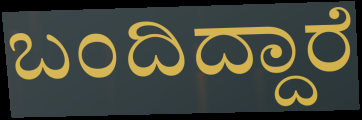
ಬಂದಿದ್ದಾರೆ